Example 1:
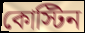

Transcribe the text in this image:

কোস্টিন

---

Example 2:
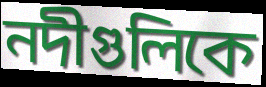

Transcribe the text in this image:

নদীগুলিকে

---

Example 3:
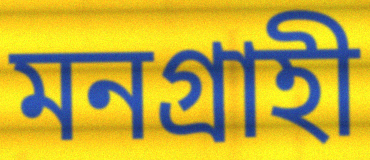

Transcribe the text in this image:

মনগ্রাহী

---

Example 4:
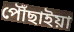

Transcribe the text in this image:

পৌঁছাইয়া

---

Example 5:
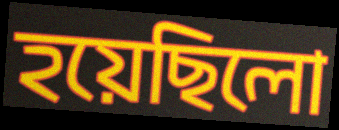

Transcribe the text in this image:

হয়েছিলো